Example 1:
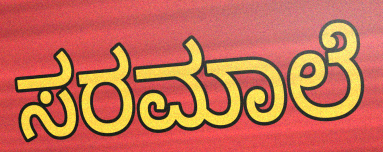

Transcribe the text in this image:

ಸರಮಾಲೆ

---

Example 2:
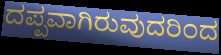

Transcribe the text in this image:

ದಪ್ಪವಾಗಿರುವುದರಿಂದ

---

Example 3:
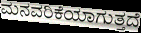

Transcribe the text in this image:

ಮನವರಿಕೆಯಾಗುತ್ತದೆ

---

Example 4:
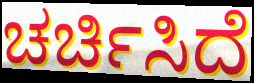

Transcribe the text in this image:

ಚರ್ಚಿಸಿದೆ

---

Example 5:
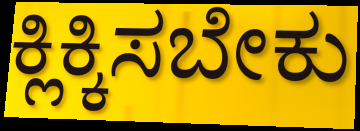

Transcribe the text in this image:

ಕ್ಲಿಕ್ಕಿಸಬೇಕು